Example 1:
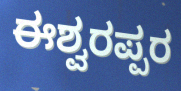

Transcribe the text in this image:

ಈಶ್ವರಪ್ಪರ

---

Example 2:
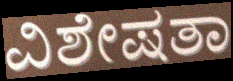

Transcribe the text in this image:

ವಿಶೇಷತಾ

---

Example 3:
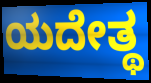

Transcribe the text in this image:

ಯದೇತ್ಥ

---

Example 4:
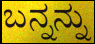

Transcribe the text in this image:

ಬನ್ನನ್ನು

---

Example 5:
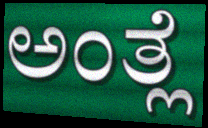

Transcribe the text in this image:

ಅಂತ್ಲೆ